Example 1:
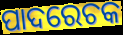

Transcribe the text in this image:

ପାଦରେଚକ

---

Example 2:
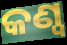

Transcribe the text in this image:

କଣ୍ୱ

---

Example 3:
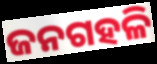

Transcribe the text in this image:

ଜନଗହଳି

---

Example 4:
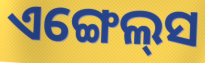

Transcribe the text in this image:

ଏଙ୍ଗେଲ୍‌ସ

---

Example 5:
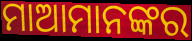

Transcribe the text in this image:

ମାଆମାନଙ୍କର